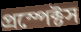
প্রস্পেক্টস